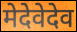
मेदेवेदेव